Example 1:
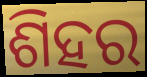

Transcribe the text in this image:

ଶିହର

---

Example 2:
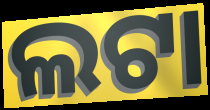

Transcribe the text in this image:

ଲଟା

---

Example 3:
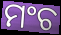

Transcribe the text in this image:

ମଂଚ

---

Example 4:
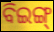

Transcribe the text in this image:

ବିଇଙ୍ଗ୍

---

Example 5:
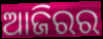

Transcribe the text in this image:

ଆଜିରର